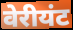
वेरीयंट